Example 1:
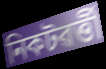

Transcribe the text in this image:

নিকটৱৰ্ত্তী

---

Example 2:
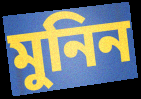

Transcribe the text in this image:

মুনিন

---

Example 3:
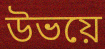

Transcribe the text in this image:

উভয়ে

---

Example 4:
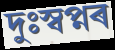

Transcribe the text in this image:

দুঃস্বপ্নৰ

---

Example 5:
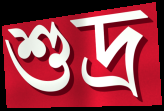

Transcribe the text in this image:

শুদ্ৰ